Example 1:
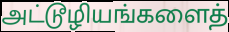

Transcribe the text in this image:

அட்டூழியங்களைத்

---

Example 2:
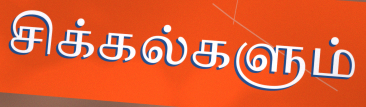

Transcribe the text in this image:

சிக்கல்களும்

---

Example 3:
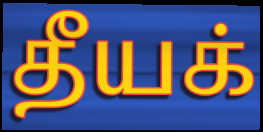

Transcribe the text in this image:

தீயக்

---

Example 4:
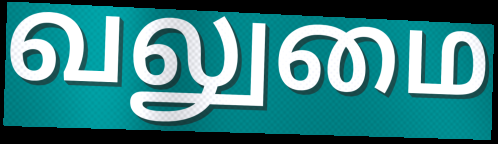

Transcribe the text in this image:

வலுமை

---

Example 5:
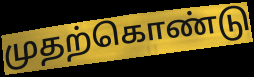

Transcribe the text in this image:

முதற்கொண்டு